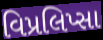
વિપ્રલિપ્સા